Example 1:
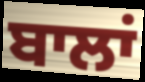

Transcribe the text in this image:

ਬਾਲਾਂ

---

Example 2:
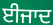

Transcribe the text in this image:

ਈਜਾਦ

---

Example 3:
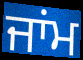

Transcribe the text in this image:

ਜਾਂਮ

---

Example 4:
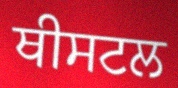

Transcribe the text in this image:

ਥੀਸਟਲ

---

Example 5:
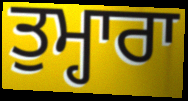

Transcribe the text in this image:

ਤੁਮ੍ਹਾਰਾ